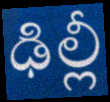
ఢిల్లీ